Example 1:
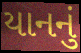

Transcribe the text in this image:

યાનનું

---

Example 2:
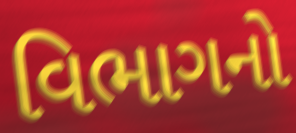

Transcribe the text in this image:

વિભાગનો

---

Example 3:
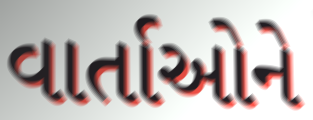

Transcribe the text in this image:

વાર્તાઓને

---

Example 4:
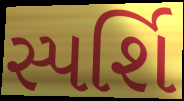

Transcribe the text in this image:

સ્પર્શિ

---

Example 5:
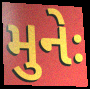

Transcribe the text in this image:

મુનેઃ